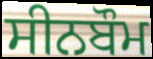
ਸੀਨਬੌਮ